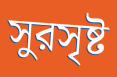
সুরসৃষ্ট